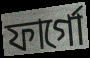
ফার্গো